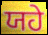
ਯਹੇ